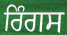
ਰਿੰਗਸ